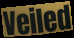
Veiled